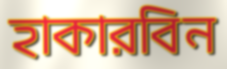
হাকারবিন